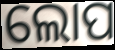
ଲୋପ